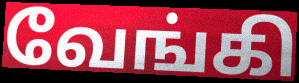
வேங்கி